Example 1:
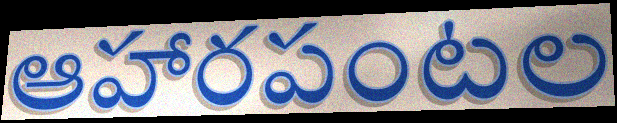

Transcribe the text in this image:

ఆహారపంటల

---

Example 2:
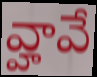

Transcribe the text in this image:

వ్హావే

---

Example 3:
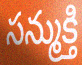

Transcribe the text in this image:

సన్ముక్తి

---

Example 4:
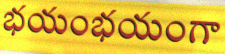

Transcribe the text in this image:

భయంభయంగా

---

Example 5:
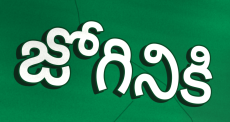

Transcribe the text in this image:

జోగినికి